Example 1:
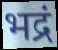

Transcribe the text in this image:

भद्रं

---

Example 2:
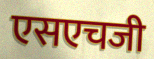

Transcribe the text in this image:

एसएचजी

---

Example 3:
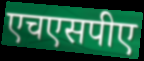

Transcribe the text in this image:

एचएसपीए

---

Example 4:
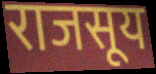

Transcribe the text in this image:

राजसूय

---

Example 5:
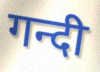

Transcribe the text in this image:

गन्दी